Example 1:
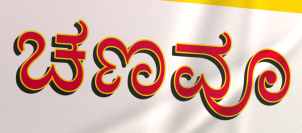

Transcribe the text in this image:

ಚಣವೂ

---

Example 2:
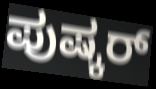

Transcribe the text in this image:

ಪುಷ್ಕರ್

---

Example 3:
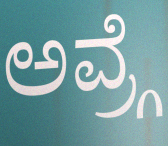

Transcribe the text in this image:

ಅವ್ರ್ಗೆ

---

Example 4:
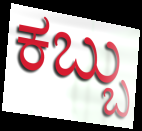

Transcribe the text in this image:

ಕಬ್ಬು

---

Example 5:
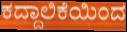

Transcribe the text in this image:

ಕದ್ದಾಲಿಕೆಯಿಂದ